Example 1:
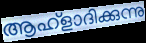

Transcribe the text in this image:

ആഹ്ളാദിക്കുന്നു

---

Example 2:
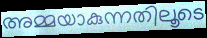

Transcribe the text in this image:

അമ്മയാകുന്നതിലൂടെ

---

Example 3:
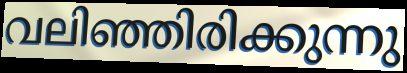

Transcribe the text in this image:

വലിഞ്ഞിരിക്കുന്നു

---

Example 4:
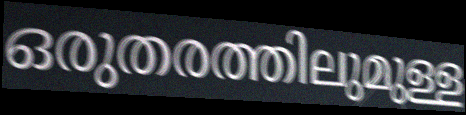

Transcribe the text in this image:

ഒരുതരത്തിലുമുള്ള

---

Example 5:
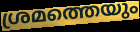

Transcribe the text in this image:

ശ്രമത്തെയും